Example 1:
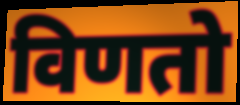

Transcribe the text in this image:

विणतो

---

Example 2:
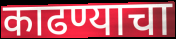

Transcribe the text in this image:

काढण्याचा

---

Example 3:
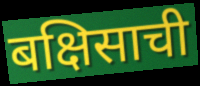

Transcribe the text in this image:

बक्षिसाची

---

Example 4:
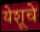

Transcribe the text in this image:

येशूचे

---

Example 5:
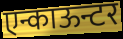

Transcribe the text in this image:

एन्काऊन्टर